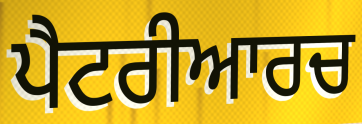
ਪੈਟਰੀਆਰਚ